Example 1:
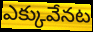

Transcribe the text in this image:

ఎక్కువేనట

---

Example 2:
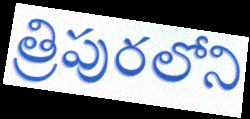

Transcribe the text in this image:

త్రిపురలోని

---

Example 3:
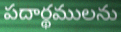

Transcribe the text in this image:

పదార్థములను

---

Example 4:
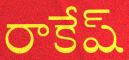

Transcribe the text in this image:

రాకేష్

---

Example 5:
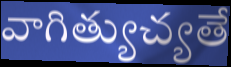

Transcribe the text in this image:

వాగిత్యుచ్యతే